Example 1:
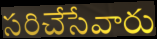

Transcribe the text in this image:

సరిచేసేవారు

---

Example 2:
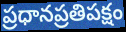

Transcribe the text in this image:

ప్రధానప్రతిపక్షం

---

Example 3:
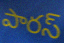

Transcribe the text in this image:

పారస్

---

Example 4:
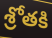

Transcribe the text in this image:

శ్రోతకి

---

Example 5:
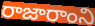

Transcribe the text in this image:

రాజారాంని